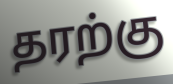
தரற்கு